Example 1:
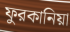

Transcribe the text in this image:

ফুরকানিয়া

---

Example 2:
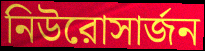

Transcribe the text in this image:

নিউরোসার্জন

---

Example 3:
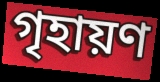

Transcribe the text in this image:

গৃহায়ণ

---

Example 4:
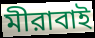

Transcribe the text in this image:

মীরাবাই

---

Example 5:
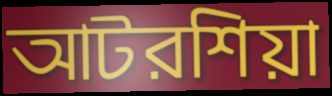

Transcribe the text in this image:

আটরশিয়া